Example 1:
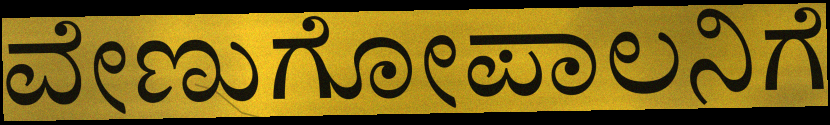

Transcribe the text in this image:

ವೇಣುಗೋಪಾಲನಿಗೆ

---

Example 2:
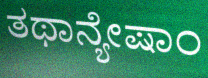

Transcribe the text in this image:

ತಥಾನ್ಯೇಷಾಂ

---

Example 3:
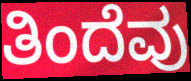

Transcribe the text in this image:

ತಿಂದೆವು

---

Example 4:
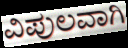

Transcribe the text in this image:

ವಿಪುಲವಾಗಿ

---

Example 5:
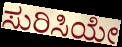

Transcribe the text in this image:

ಸುರಿಸಿಯೇ